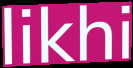
likhi